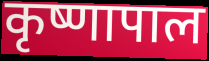
कृष्णापाल